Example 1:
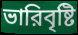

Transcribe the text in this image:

ভারিবৃষ্টি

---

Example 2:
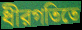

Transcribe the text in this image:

ধীরগতিতে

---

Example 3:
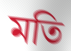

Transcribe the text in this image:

মতি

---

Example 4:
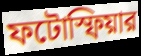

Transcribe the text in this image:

ফটোস্ফিয়ার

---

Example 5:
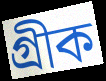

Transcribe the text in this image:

গ্রীক